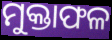
ମୁକ୍ତାଫଳ